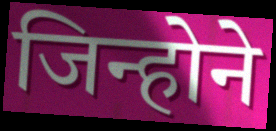
जिन्‍होने